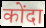
कोंदा